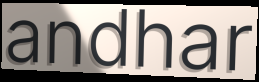
andhar